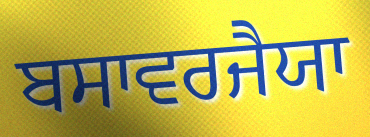
ਬਸਾਵਰਜੈਯਾ